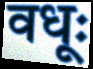
वधूः